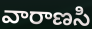
వారాణసి